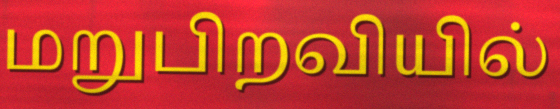
மறுபிறவியில்